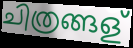
ചിത്രങ്ങള്